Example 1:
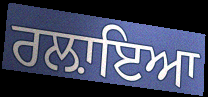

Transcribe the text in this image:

ਰਲ਼ਾਇਆ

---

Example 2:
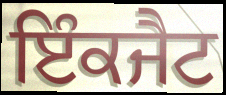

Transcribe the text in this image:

ਇੰਕਜੈਟ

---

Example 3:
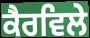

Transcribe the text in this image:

ਕੈਰਵਿਲੇ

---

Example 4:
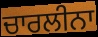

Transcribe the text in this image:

ਚਾਰਲੀਨਾ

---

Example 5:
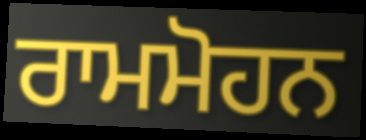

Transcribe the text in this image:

ਰਾਮਮੋਹਨ